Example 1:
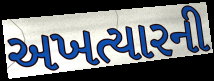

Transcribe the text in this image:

અખત્યારની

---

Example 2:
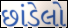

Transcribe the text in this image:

છાંડેલો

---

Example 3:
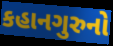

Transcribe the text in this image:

કહાનગુરુનો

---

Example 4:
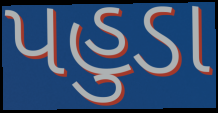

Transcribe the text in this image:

પહુડા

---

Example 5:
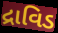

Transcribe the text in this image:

દ્રાવિડ